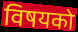
विषयको